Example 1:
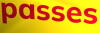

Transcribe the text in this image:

passes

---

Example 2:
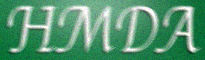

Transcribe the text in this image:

HMDA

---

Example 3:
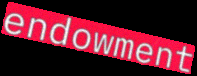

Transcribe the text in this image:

endowment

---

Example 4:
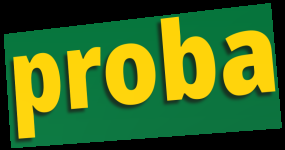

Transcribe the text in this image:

proba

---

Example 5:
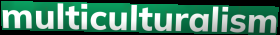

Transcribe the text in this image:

multiculturalism